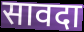
सावदा